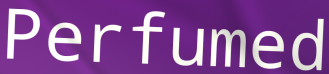
Perfumed